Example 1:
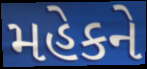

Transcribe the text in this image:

મહેકને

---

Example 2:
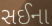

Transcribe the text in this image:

સઈના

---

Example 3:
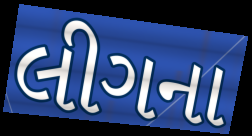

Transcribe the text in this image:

લીગના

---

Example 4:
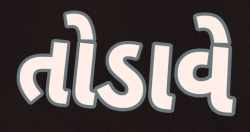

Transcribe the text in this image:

તોડાવે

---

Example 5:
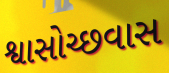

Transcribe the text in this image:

શ્વાસોચ્છવાસ